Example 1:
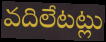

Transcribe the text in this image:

వదిలేటట్లు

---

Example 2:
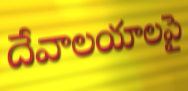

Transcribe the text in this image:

దేవాలయాలపై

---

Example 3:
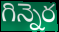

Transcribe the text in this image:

గిన్నెర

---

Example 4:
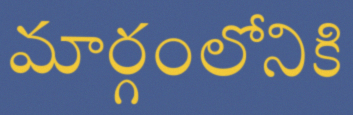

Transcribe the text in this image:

మార్గంలోనికి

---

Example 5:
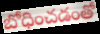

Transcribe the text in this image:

బోధించడంతో